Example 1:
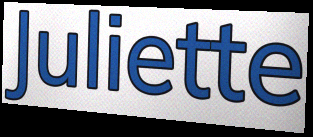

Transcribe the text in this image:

Juliette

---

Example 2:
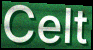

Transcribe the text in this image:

Celt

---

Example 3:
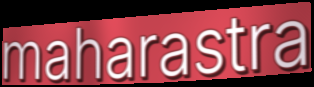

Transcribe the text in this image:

maharastra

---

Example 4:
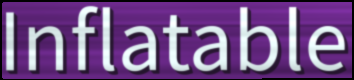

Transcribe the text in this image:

Inflatable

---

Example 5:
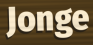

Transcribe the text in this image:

Jonge